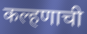
कल्हणाची